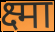
क्ष्मा